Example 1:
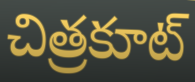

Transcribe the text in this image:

చిత్రకూట్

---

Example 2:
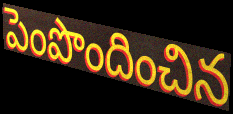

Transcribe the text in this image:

పెంపొందించిన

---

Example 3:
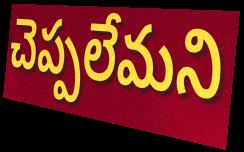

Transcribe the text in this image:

చెప్పలేమని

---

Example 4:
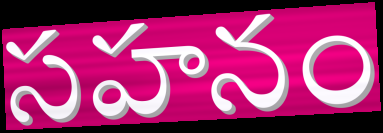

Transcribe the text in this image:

సహనం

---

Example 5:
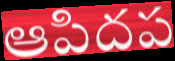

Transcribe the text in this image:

ఆపిదప